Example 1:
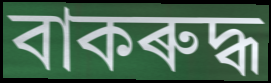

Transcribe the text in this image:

বাকৰুদ্ধ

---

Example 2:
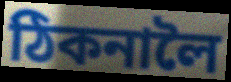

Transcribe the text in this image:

ঠিকনালৈ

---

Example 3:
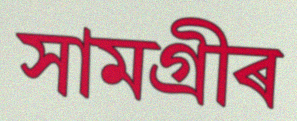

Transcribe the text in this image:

সামগ্ৰীৰ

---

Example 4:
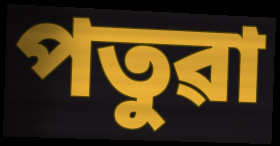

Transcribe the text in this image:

পতুৱা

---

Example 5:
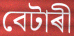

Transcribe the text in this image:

বেটাৰী